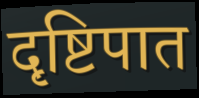
दृष्टिपात